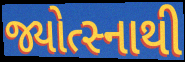
જ્યોત્સ્નાથી